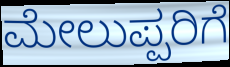
ಮೇಲುಪ್ಪರಿಗೆ